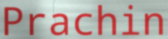
Prachin